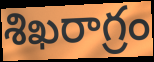
శిఖరాగ్రం